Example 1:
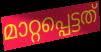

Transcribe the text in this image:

മാറ്റപ്പെട്ടത്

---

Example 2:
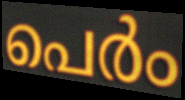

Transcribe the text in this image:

പെർം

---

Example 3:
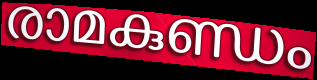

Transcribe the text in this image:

രാമകുണ്ഡം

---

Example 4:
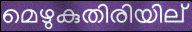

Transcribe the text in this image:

മെഴുകുതിരിയില്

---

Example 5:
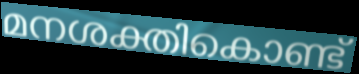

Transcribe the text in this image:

മനശക്തികൊണ്ട്